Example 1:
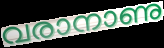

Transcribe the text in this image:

വരാനാണു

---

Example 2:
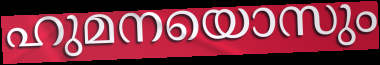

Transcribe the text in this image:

ഹുമനയൊസും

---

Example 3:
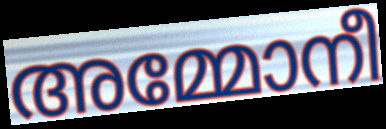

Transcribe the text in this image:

അമ്മോനീ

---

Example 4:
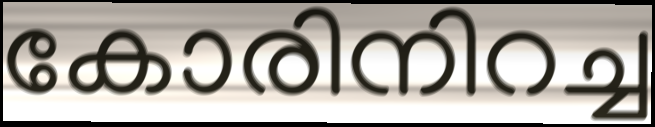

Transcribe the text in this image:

കോരിനിറച്ച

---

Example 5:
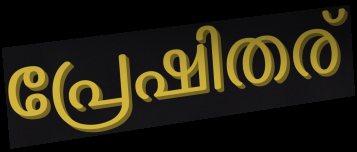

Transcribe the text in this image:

പ്രേഷിതര്